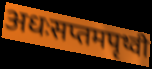
अधःसप्तमपृथ्वी